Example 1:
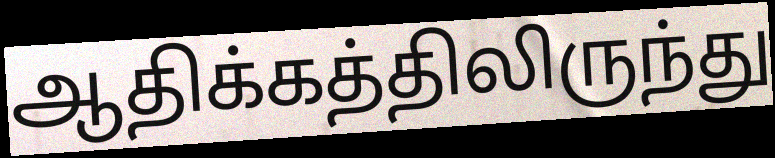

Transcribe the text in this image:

ஆதிக்கத்திலிருந்து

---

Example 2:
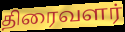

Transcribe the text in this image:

திரைவளர்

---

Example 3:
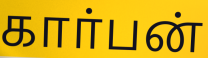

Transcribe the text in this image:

கார்பன்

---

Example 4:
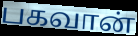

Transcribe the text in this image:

பகவான்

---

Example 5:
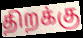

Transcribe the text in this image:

திறக்கு